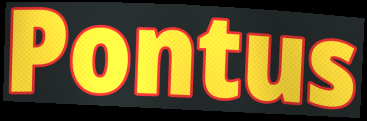
Pontus